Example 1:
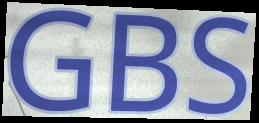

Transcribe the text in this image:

GBS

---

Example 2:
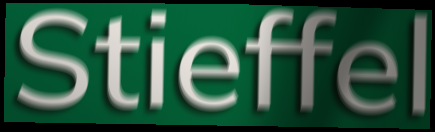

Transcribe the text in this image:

Stieffel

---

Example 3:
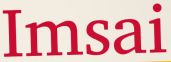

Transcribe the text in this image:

Imsai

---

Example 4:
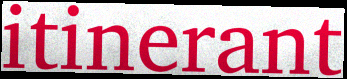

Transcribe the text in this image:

itinerant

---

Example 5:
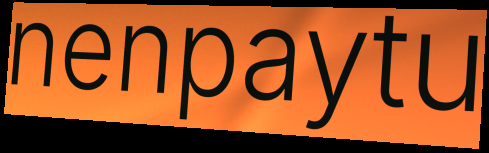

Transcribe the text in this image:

nenpaytu